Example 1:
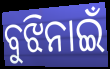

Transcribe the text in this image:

ବୁଝିନାଇଁ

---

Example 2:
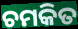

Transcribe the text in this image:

ଚମକିତ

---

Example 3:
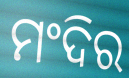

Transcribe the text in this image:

ମଂଦିର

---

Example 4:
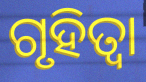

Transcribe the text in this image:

ଗୃହିତ୍ବା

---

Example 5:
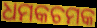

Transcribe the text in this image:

ଧମକଚମକ